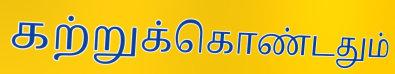
கற்றுக்கொண்டதும்